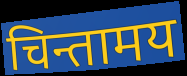
चिन्तामय